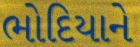
ભોદિયાને